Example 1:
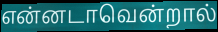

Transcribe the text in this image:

என்னடாவென்றால்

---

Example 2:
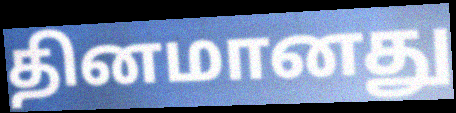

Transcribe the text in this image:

தினமானது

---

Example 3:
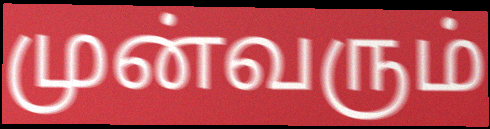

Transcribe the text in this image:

முன்வரும்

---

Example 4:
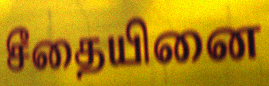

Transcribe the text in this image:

சீதையினை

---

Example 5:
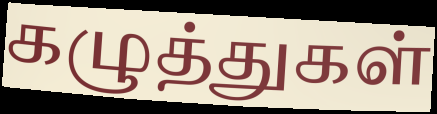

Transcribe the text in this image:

கழுத்துகள்